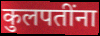
कुलपतींना